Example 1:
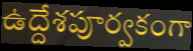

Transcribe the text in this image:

ఉద్దేశపూర్వకంగా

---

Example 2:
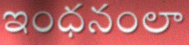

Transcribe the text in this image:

ఇంధనంలా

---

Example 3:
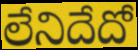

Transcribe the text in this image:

లేనిదేదో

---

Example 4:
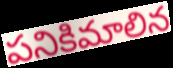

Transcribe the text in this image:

పనికిమాలిన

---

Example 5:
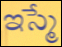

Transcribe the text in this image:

ఇస్మే